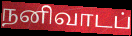
நனிவாடப்